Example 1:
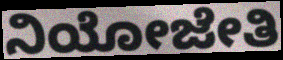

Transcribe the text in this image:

ನಿಯೋಜೇತಿ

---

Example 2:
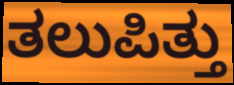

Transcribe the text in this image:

ತಲುಪಿತ್ತು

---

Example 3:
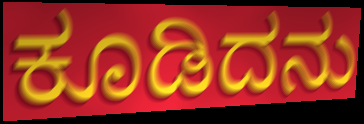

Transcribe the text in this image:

ಕೂಡಿದನು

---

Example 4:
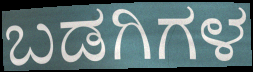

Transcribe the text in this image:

ಬಡಗಿಗಳ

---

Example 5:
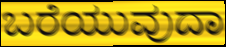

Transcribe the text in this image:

ಬರೆಯುವುದಾ